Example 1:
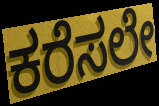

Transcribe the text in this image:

ಕರೆಸಲೇ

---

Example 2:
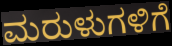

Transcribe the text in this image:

ಮರುಳುಗಳಿಗೆ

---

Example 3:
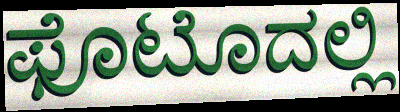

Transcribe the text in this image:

ಫೊಟೊದಲ್ಲಿ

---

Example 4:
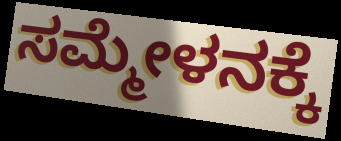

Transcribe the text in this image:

ಸಮ್ಮೇಳನಕ್ಕೆ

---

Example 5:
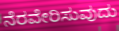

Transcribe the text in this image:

ನೆರವೇರಿಸುವುದು